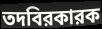
তদবিরকারক